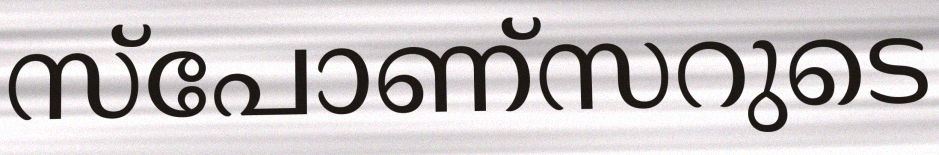
സ്പോണ്സറുടെ